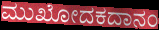
ಮುಖೋದಕದಾನಂ